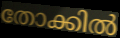
തോക്കിൽ